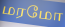
மரமோ